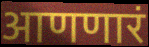
आणणारं